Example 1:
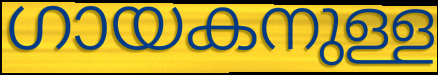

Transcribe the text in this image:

ഗായകനുള്ള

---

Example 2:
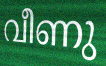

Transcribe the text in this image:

വീണു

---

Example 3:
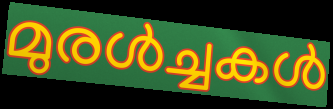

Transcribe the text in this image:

മുരൾച്ചകൾ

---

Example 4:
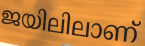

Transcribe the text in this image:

ജയിലിലാണ്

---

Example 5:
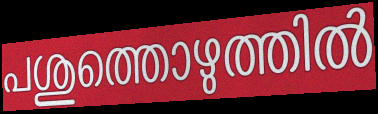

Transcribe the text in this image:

പശുത്തൊഴുത്തിൽ